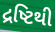
દ્રષ્ટિથી